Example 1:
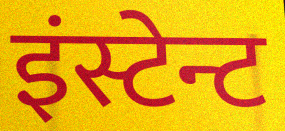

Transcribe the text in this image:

इंस्टेन्ट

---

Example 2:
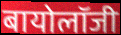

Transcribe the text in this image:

बायोलॉजी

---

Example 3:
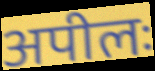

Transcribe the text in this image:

अपीलः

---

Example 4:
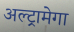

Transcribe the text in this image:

अल्ट्रामेगा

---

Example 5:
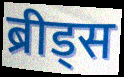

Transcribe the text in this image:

ब्रीड्स